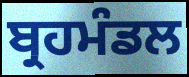
ਬ੍ਰਹਮੰਡਲ